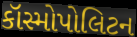
કૉસ્મોપોલિટન